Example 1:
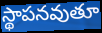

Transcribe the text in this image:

స్థాపనవుతూ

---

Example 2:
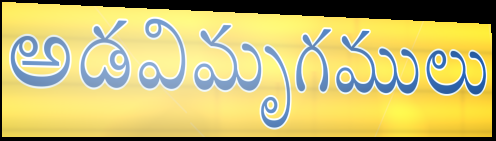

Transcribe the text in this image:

అడవిమృగములు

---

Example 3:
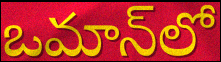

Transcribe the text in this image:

ఒమాన్‌లో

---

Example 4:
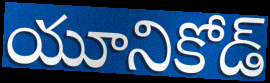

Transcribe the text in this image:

యూనికోడ్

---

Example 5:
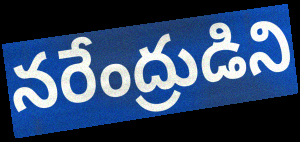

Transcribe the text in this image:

నరేంద్రుడిని